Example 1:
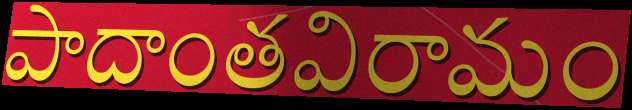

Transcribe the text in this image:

పాదాంతవిరామం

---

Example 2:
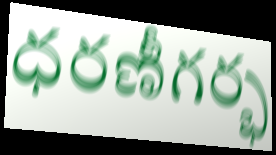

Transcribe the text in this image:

ధరణీగర్భ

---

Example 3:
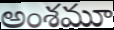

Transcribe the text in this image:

అంశమూ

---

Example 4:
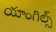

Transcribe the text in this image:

యాంగిల్స్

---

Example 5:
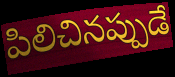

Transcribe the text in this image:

పిలిచినప్పుడే